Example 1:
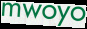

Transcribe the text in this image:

mwoyo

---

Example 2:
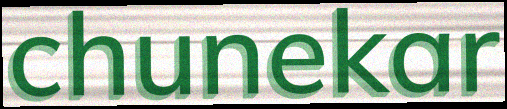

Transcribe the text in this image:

chunekar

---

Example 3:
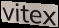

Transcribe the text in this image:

vitex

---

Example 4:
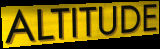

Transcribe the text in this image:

ALTITUDE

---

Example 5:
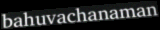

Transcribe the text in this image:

bahuvachanaman